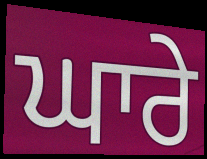
ਘਾਰੇ